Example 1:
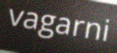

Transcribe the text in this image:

vagarni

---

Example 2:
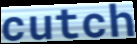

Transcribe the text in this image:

cutch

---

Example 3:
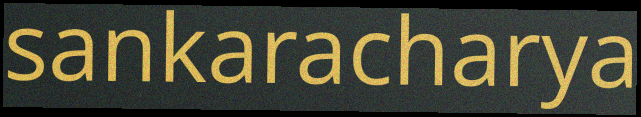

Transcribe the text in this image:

sankaracharya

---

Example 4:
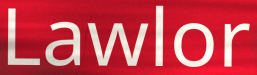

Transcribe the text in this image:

Lawlor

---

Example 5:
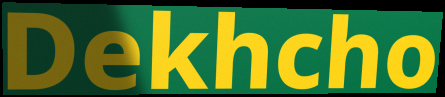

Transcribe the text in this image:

Dekhcho